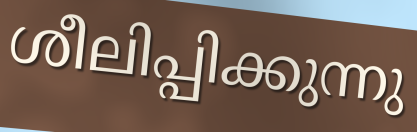
ശീലിപ്പിക്കുന്നു